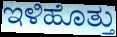
ಇಳಿಹೊತ್ತು